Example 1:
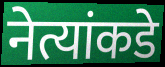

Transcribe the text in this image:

नेत्यांकडे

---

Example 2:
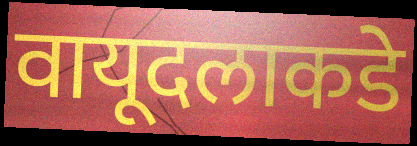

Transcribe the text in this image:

वायूदलाकडे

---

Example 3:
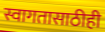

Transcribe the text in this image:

स्वागतासाठीही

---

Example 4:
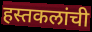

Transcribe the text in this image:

हस्तकलांची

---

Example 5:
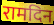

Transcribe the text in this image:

रामदिन